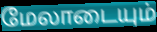
மேலாடையும்